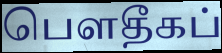
பௌதீகப்